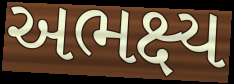
અભક્ષ્ય